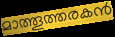
മാത്തൂത്തരകൻ